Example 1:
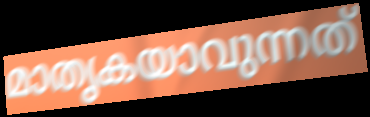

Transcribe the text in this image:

മാതൃകയാവുന്നത്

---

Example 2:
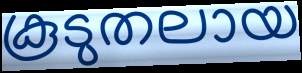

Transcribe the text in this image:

കൂടുതലായ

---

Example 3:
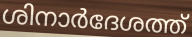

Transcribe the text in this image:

ശിനാർദേശത്ത്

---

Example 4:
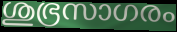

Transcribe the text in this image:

ശുഭ്രസാഗരം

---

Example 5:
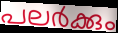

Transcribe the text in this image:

പലർക്കും